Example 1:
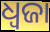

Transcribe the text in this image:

ଧ୍ୱଜା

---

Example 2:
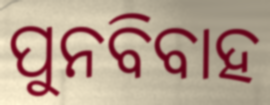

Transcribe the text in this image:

ପୁନବିବାହ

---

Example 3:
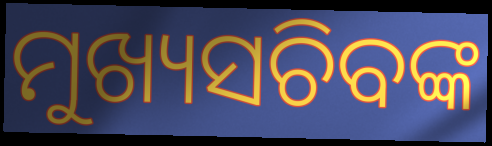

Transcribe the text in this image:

ମୁଖ୍ୟସଚିବଙ୍କ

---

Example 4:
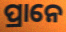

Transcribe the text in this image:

ପ୍ରାନେ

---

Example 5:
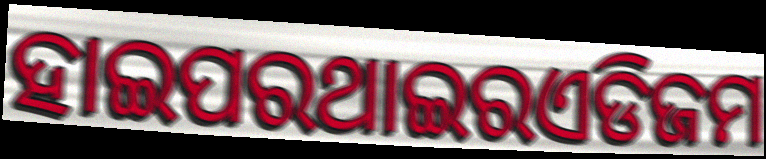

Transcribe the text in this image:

ହାଇପରଥାଇରଏଡିଜମ